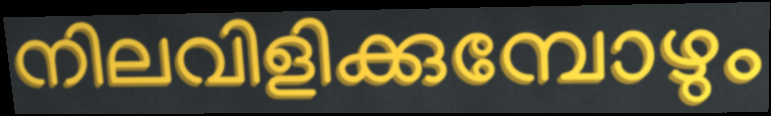
നിലവിളിക്കുമ്പോഴും